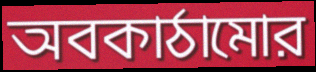
অবকাঠামোর